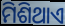
ମିଶିଥାଏ